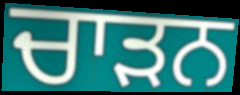
ਚਾੜਨ